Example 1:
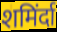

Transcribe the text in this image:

शमिंर्दा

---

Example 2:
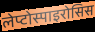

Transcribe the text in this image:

लेप्टोस्पाइरोसिस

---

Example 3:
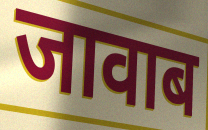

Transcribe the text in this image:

जावाब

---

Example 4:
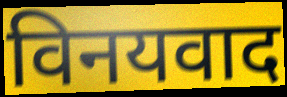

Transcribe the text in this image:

विनयवाद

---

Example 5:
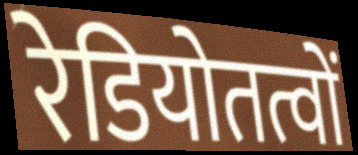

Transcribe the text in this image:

रेडियोतत्वों